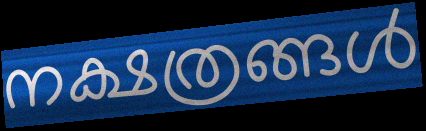
നക്ഷത്രങ്ങൾ